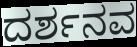
ದರ್ಶನವ